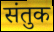
संतुक